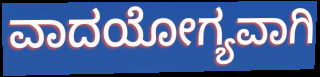
ವಾದಯೋಗ್ಯವಾಗಿ